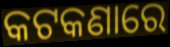
କଟକଣାରେ